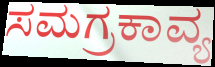
ಸಮಗ್ರಕಾವ್ಯ